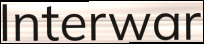
Interwar